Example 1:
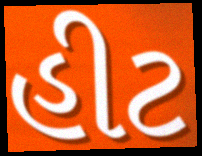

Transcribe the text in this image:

હીટ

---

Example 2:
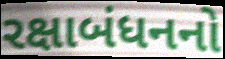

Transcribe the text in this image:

રક્ષાબંધનનો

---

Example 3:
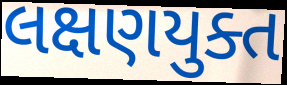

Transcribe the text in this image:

લક્ષણયુક્ત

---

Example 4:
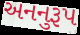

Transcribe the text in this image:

અનનુરૂપ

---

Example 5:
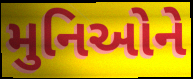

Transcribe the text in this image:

મુનિઓને